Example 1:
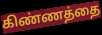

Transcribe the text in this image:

கிண்ணத்தை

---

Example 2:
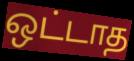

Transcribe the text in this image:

ஒட்டாத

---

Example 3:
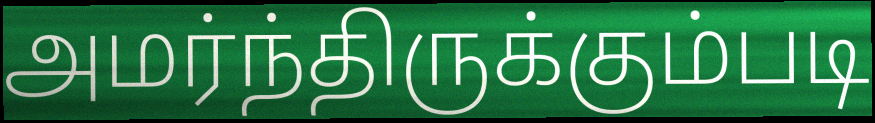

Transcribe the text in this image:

அமர்ந்திருக்கும்படி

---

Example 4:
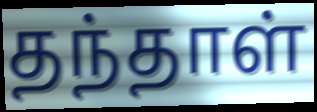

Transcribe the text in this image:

தந்தாள்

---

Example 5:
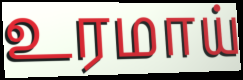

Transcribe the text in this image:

உரமாய்